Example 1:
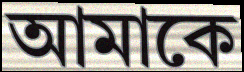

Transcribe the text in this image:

আমাকে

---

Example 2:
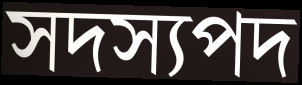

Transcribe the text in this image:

সদস্যপদ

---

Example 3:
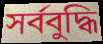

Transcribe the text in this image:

সৰ্ববুদ্ধি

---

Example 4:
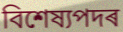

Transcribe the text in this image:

বিশেষ্যপদৰ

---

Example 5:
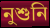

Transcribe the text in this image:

নুশুনি